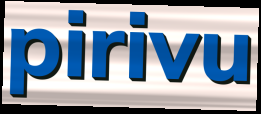
pirivu